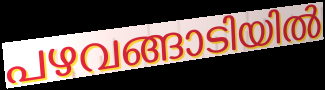
പഴവങ്ങാടിയിൽ